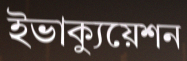
ইভাক্যুয়েশন